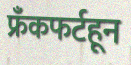
फ्रँकफर्टहून